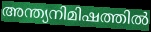
അന്ത്യനിമിഷത്തിൽ